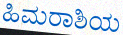
ಹಿಮರಾಶಿಯ